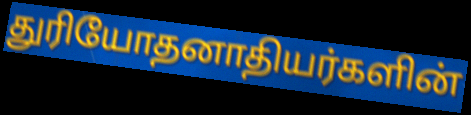
துரியோதனாதியர்களின்